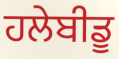
ਹਲੇਬੀਡੂ